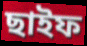
ছাইফ